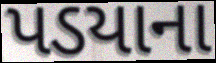
પડયાના